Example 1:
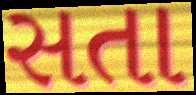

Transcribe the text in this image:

સતા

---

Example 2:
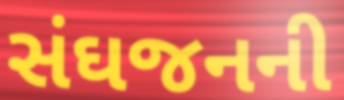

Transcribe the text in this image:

સંઘજનની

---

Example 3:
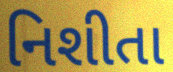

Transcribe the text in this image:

નિશીતા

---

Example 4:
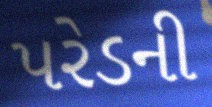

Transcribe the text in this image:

પરેડની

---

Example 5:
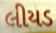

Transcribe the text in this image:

લીયડ